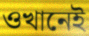
ওখানেই